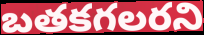
బతకగలరని